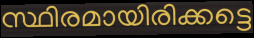
സ്ഥിരമായിരിക്കട്ടെ